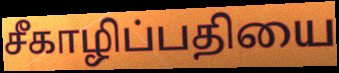
சீகாழிப்பதியை